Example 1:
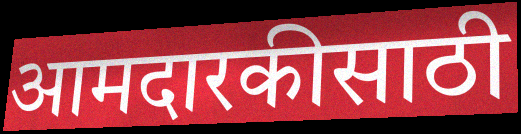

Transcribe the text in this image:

आमदारकीसाठी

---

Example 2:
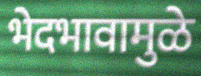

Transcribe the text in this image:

भेदभावामुळे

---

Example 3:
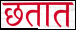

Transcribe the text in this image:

छतात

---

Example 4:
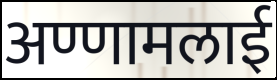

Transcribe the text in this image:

अण्णामलाई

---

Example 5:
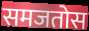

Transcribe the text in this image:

समजतोस